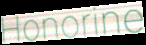
Honorine